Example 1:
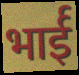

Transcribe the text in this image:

भार्ई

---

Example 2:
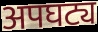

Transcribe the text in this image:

अपघट्य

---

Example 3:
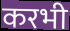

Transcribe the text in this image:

करभी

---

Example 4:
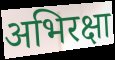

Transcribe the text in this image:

अभिरक्षा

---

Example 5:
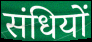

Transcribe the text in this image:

संधियों